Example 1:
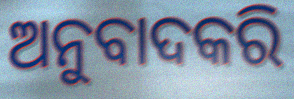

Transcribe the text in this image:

ଅନୁବାଦକରି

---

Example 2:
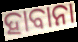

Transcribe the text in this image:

ହାବାନା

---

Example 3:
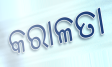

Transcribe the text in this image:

କରାଳତା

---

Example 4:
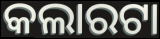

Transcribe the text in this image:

କଲାରଟା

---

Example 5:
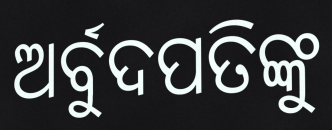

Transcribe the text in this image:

ଅର୍ବୁଦପତିଙ୍କୁ